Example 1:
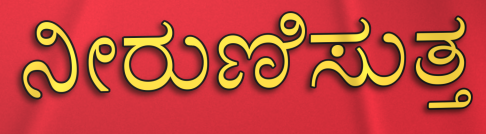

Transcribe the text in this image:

ನೀರುಣಿಸುತ್ತ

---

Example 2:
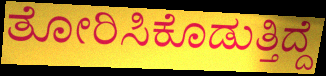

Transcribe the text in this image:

ತೋರಿಸಿಕೊಡುತ್ತಿದ್ದೆ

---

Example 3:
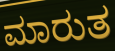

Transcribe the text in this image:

ಮಾರುತ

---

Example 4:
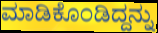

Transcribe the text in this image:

ಮಾಡಿಕೊಂಡಿದ್ದನ್ನು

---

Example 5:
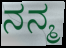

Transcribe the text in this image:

ನನ್ಮ